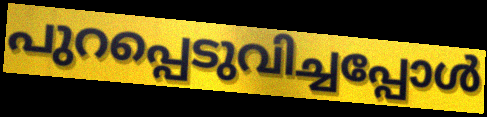
പുറപ്പെടുവിച്ചപ്പോൾ